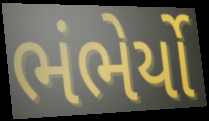
ભંભેર્યો